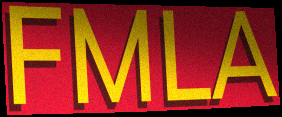
FMLA